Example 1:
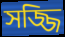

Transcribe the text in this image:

সজ্জি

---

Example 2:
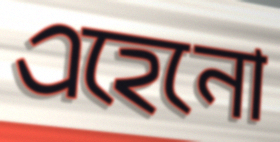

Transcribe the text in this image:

এহেনো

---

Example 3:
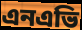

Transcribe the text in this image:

এনএভি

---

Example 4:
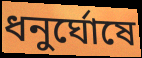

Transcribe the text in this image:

ধনুর্ঘোষে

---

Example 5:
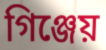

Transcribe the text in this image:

গিঞ্জেয়